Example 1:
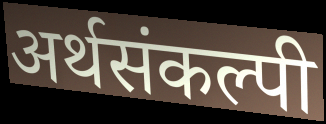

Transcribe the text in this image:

अर्थसंकल्पी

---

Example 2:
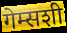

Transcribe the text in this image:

गेम्सशी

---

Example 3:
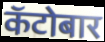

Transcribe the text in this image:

कॅटोबार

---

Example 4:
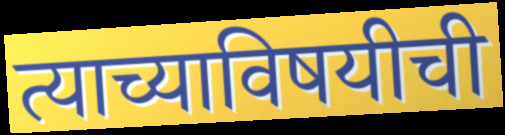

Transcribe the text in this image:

त्याच्याविषयीची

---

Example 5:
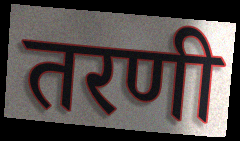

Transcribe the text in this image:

तरणी